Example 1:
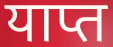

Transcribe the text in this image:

याप्त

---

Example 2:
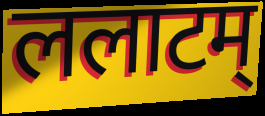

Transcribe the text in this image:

ललाटम्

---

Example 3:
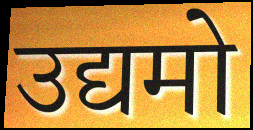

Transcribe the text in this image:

उद्यमो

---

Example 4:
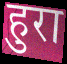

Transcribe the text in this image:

हुरा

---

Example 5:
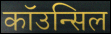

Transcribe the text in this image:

कॉउन्सिल